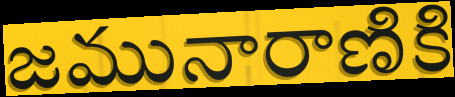
జమునారాణికి